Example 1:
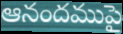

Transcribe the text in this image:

ఆనందముపై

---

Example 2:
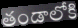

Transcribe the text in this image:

తండాలోకి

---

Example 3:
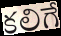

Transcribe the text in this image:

కలిగే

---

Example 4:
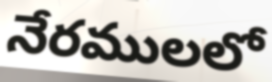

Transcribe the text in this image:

నేరములలో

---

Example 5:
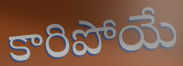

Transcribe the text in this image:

కారిపోయే